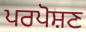
ਪਰਪੋਸ਼ਣ